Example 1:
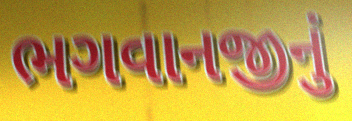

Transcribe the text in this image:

ભગવાનજીનું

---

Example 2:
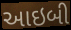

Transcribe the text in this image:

આઇબી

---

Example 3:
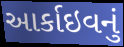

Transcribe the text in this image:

આર્કાઇવનું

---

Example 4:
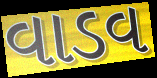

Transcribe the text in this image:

વાડવ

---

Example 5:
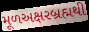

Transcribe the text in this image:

મૂળઅક્ષરબ્રહ્મથી